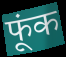
फूंक